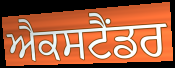
ਐਕਸਟੈਂਡਰ